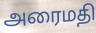
அரைமதி